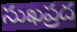
సుఖప్రద